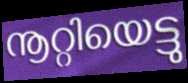
നൂറ്റിയെട്ടു